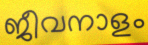
ജീവനാളം